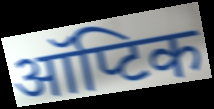
ऑप्टिक